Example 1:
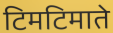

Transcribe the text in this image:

टिमटिमाते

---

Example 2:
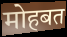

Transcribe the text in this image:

मोहबत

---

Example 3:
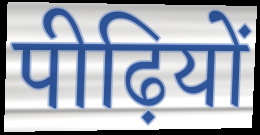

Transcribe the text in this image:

पीढ़ियों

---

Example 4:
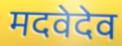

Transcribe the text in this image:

मदवेदेव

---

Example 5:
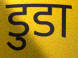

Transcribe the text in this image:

डुडा